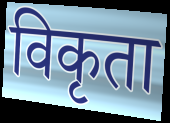
विकृता